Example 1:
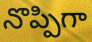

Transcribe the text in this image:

నొప్పిగా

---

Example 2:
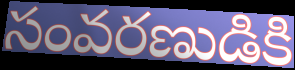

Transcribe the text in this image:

సంవరణుడికి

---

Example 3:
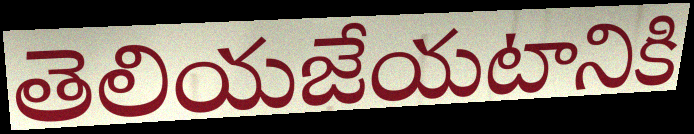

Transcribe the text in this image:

తెలియజేయటానికి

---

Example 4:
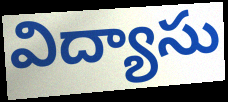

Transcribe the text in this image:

విద్యాసు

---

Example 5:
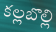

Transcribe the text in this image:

కల్లబొల్లి